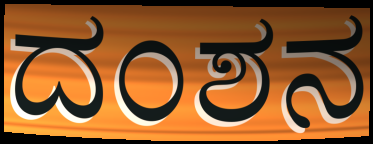
ದಂಶನ